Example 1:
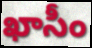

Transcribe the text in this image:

ఖాసీం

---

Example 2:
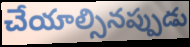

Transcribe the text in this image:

చేయాల్సినప్పుడు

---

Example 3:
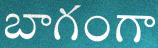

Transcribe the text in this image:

బాగంగా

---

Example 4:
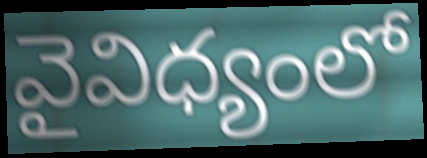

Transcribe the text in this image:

వైవిధ్యంలో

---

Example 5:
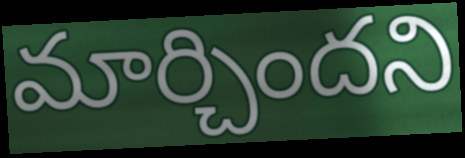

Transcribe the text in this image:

మార్చిందని